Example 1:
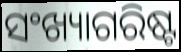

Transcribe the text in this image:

ସଂଖ୍ୟାଗରିଷ୍ଟ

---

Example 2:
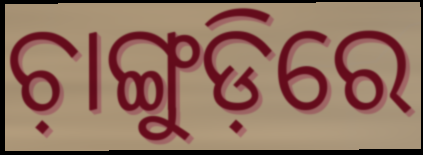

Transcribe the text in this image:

ଚ଼ାଙ୍ଗୁଡ଼ିରେ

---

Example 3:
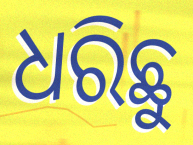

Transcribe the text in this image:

ଧରିଛୁ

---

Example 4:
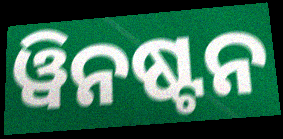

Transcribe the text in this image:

ୱିନଷ୍ଟନ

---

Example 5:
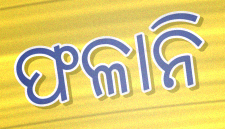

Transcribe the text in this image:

ଫଳାନି